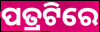
ପତ୍ରଟିରେ